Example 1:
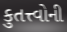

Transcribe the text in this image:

કુતત્ત્વોની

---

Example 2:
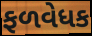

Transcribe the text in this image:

ફળવેધક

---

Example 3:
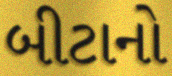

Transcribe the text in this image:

બીટાનો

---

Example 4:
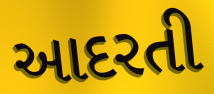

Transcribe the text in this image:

આદરતી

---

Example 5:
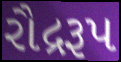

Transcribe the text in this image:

રૌદ્રરૂપ